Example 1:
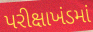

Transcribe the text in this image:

પરીક્ષાખંડમાં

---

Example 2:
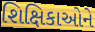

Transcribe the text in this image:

શિક્ષિકાઓને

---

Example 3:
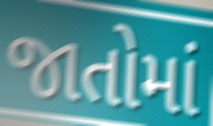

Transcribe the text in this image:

જાતોમાં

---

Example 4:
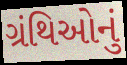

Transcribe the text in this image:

ગ્રંથિઓનું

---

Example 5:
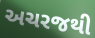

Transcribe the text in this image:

અચરજથી